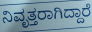
ನಿವೃತ್ತರಾಗಿದ್ದಾರೆ